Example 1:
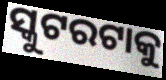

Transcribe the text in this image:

ସ୍କୁଟରଟାକୁ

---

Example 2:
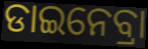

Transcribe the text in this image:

ଡାଇନେବ୍ରା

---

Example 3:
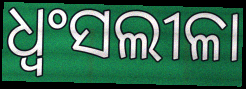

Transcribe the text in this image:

ଧ୍ବଂସଲୀଳା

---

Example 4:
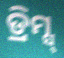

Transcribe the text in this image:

ଡ୍ରିମ୍ସ୍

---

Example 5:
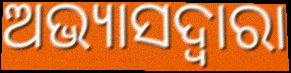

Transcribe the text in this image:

ଅଭ୍ୟାସଦ୍ୱାରା